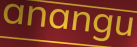
anangu